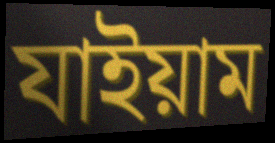
যাইয়াম